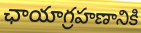
ఛాయాగ్రహణానికి